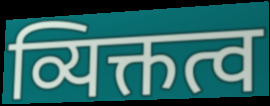
व्यिक्तत्व